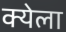
क्येला